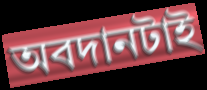
অবদানটাই